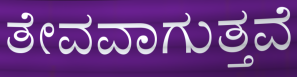
ತೇವವಾಗುತ್ತವೆ